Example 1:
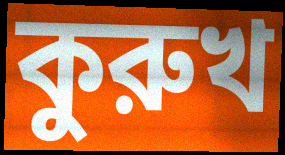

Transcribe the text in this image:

কুরুখ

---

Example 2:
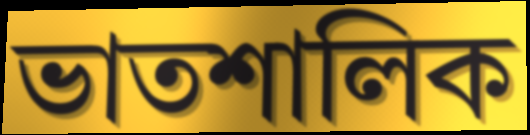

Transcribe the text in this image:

ভাতশালিক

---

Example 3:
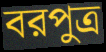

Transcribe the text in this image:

বরপুত্র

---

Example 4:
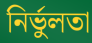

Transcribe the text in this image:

নির্ভুলতা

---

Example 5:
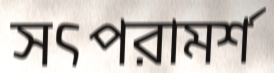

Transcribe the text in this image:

সৎপরামর্শ